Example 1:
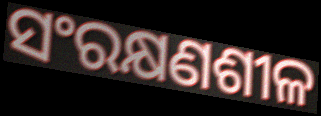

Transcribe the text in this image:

ସଂରକ୍ଷଣଶୀଳ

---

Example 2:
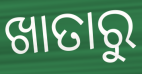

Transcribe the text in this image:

ଖାତାରୁ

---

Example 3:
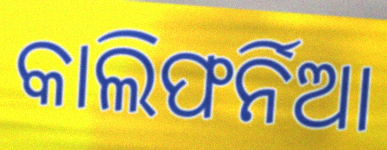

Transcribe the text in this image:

କାଲିଫର୍ନିଆ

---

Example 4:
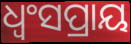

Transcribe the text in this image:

ଧ୍ୱଂସପ୍ରାୟ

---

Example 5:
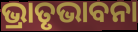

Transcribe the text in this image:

ଭ୍ରାତୃଭାବନା